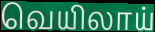
வெயிலாய்